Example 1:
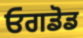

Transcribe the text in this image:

ਓਗਡੋਡ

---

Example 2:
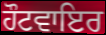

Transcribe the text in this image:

ਹੌਟਵਾਇਰ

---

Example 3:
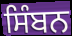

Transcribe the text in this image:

ਸਿੰਬਨ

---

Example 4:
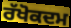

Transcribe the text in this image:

ਰੱਖੋਕਦਮ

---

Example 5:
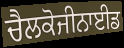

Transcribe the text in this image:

ਚੈਲਕੋਜੀਨਾਈਡ